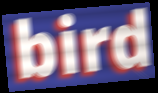
bird